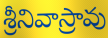
శ్రీనివాస్రావు